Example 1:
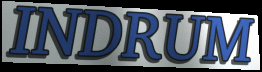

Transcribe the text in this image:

INDRUM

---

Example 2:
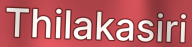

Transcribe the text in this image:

Thilakasiri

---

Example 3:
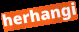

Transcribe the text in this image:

herhangi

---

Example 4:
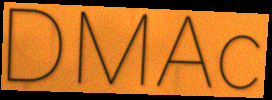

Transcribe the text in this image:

DMAc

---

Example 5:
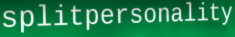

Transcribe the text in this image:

splitpersonality